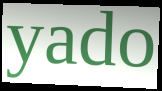
yado